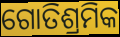
ଗୋତିଶ୍ରମିକ